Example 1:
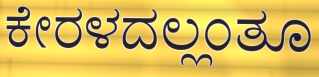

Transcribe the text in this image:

ಕೇರಳದಲ್ಲಂತೂ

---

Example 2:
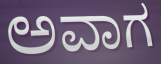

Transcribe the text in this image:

ಅವಾಗ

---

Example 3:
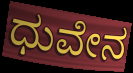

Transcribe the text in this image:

ಧುವೇನ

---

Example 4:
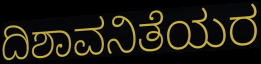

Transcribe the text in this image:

ದಿಶಾವನಿತೆಯರ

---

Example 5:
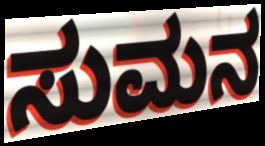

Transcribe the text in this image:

ಸುಮನ